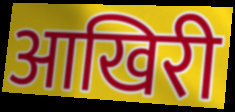
आखिरी